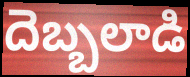
దెబ్బలాడి